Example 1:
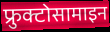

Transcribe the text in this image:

फ्रुक्टोसामाइन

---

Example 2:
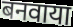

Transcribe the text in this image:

बनवाया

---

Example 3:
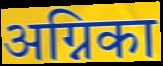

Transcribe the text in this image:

अग्निका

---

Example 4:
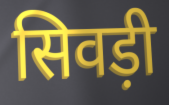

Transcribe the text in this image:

सिवड़ी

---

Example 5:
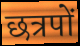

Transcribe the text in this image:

छत्रपों